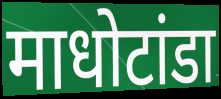
माधोटांडा